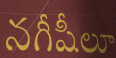
నగీషీలూ